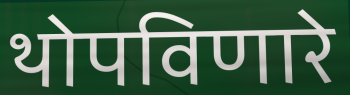
थोपविणारे